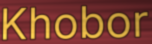
Khobor